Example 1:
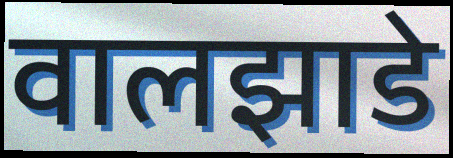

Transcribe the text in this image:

वालझाडे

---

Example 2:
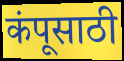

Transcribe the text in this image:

कंपूसाठी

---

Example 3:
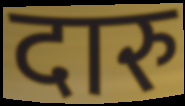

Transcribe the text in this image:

दारु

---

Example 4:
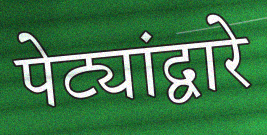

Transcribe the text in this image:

पेट्यांद्वारे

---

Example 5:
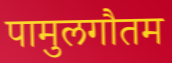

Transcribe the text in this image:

पामुलगौतम